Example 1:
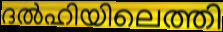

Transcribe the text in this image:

ദൽഹിയിലെത്തി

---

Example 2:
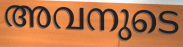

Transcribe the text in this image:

അവനുടെ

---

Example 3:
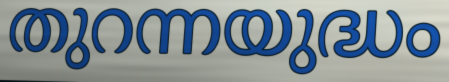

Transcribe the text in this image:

തുറന്നയുദ്ധം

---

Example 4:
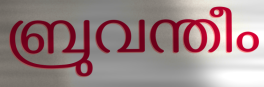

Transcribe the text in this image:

ബ്രുവന്തീം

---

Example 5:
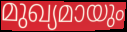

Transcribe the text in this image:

മുഖ്യമായും